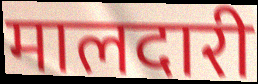
मालदारी